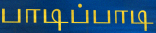
பாடிப்பாடி